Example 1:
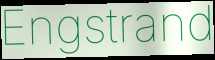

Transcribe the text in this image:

Engstrand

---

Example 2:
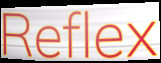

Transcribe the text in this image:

Reflex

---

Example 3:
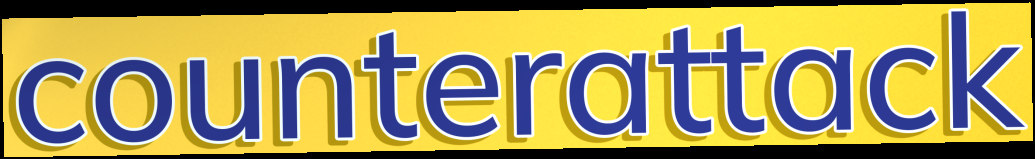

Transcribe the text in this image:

counterattack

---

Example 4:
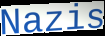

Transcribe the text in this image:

Nazis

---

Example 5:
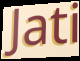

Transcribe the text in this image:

Jati